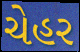
ચેહર